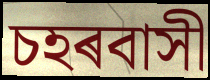
চহৰবাসী